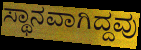
ಸ್ಥಾನವಾಗಿದ್ದವು